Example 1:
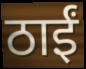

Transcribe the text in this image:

ठाईं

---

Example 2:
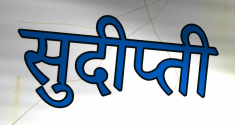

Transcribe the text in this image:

सुदीप्ती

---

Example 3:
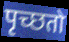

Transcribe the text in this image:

पृच्छतो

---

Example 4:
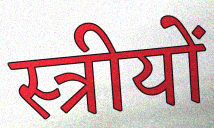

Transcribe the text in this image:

स्त्रीयों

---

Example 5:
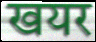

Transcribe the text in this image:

खयर